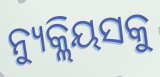
ନ୍ୟୁକ୍ଲିୟସକୁ